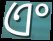
ଏଂ